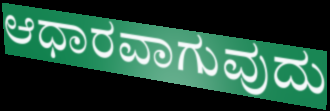
ಆಧಾರವಾಗುವುದು